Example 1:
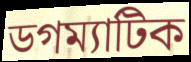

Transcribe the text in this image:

ডগম্যাটিক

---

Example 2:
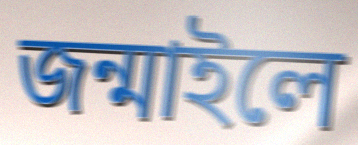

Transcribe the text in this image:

জন্মাইলে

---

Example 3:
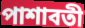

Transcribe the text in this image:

পাশাবতী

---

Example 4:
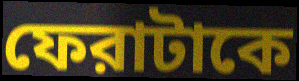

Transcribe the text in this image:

ফেরাটাকে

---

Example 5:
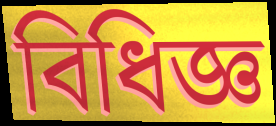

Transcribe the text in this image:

বিধিজ্ঞ